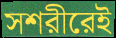
সশরীরেই